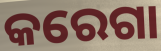
କରେଗା